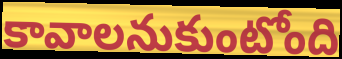
కావాలనుకుంటోంది